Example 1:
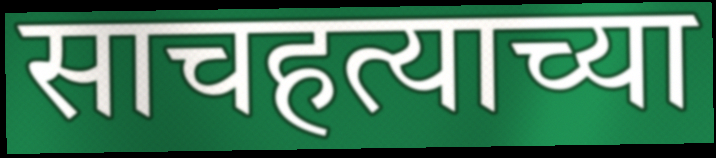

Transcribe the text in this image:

साचहत्याच्या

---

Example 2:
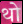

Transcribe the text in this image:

थो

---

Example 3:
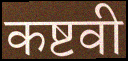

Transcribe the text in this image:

कष्टवी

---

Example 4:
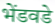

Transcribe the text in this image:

भेंडवडे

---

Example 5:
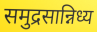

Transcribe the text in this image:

समुद्रसान्निध्य